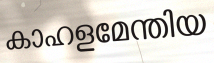
കാഹളമേന്തിയ